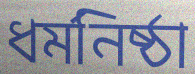
ধর্মনিষ্ঠা